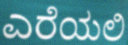
ಎರೆಯಲಿ